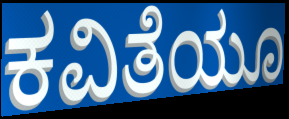
ಕವಿತೆಯೂ